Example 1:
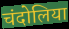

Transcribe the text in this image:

चंदोलिया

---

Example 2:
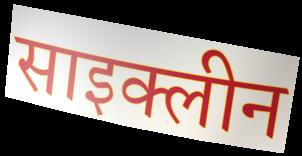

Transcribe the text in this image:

साइक्लीन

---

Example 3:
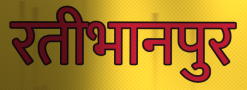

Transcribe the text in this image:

रतीभानपुर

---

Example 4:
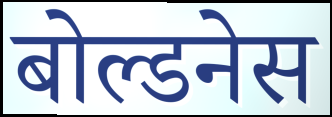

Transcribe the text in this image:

बोल्डनेस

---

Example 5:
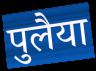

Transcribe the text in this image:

पुलैया